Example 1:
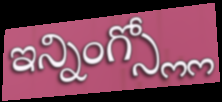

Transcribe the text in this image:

ఇన్నింగ్స్ల్లో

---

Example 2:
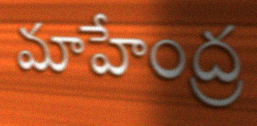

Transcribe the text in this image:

మాహేంద్ర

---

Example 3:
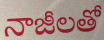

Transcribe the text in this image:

నాజీలతో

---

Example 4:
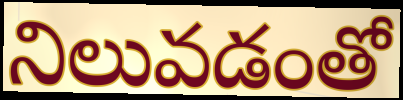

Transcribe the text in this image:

నిలువడంతో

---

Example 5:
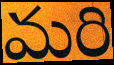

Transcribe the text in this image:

మరి